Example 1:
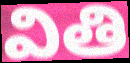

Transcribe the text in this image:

వితి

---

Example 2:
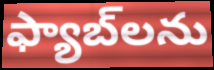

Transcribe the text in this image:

ఫ్యాబ్‌లను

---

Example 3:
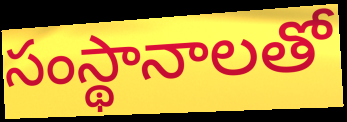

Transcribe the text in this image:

సంస్థానాలతో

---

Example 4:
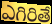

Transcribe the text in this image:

ఎగిరితే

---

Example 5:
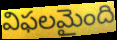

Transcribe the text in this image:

విఫలమైంది